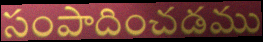
సంపాదించడము